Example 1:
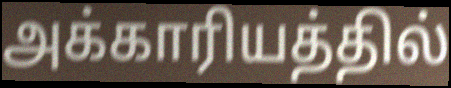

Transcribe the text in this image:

அக்காரியத்தில்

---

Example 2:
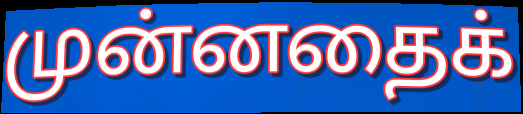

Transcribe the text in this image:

முன்னதைக்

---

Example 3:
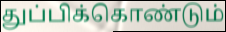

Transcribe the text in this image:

துப்பிக்கொண்டும்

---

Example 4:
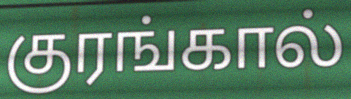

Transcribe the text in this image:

குரங்கால்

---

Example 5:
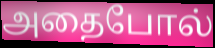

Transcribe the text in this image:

அதைபோல்